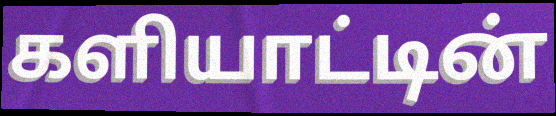
களியாட்டின்